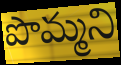
పొమ్మని